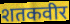
शतकवीर